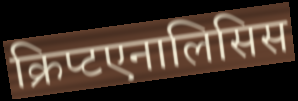
क्रिप्टएनालिसिस